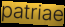
patriae